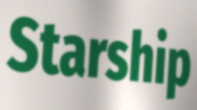
Starship